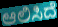
ಆಲಿಸಿದೆ